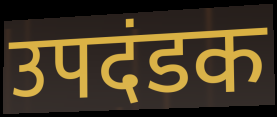
उपदंडक